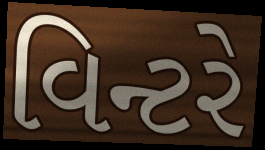
વિન્ટરે